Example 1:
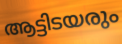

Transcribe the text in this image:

ആട്ടിടയരും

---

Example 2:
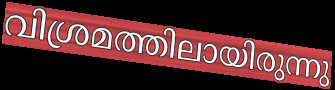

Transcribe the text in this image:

വിശ്രമത്തിലായിരുന്നു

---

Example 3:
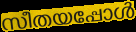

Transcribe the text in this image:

സീതയപ്പോൾ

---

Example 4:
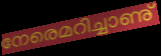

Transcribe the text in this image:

നേരെമറിച്ചാണു്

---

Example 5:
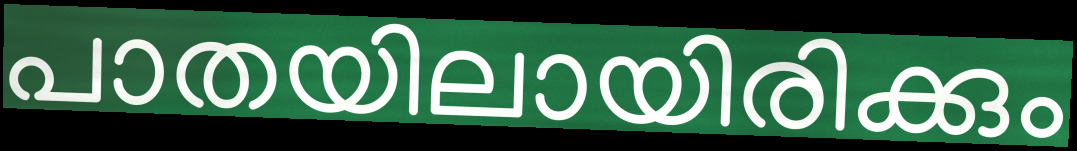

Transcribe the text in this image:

പാതയിലായിരിക്കും